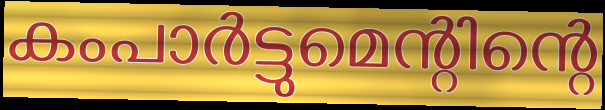
കംപാർട്ടുമെന്റിന്റെ